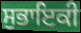
ਸੁਭਾਇਕੀ